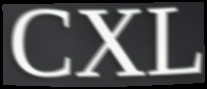
CXL